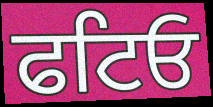
ਫਟਿਓ